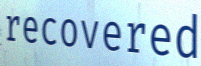
recovered